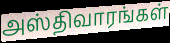
அஸ்திவாரங்கள்